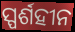
ସ୍ପର୍ଶହୀନ